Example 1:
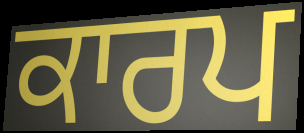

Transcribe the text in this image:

ਕਾਰਪ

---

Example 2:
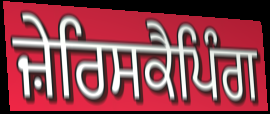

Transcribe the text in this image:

ਜ਼ੇਰਿਸਕੈਪਿੰਗ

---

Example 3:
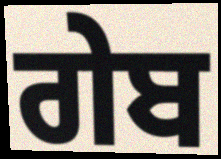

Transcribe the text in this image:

ਗੇਬ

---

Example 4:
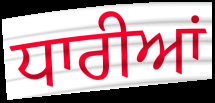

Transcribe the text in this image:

ਧਾਰੀਆਂ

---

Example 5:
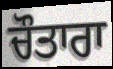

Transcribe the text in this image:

ਚੌਤਾਰਾ